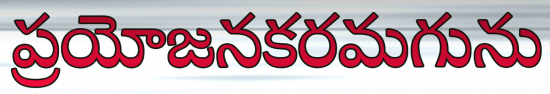
ప్రయోజనకరమగును